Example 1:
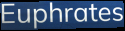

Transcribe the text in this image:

Euphrates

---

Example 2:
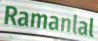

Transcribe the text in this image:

Ramanlal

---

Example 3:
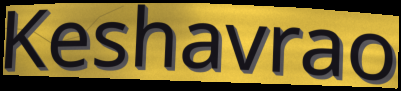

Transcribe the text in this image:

Keshavrao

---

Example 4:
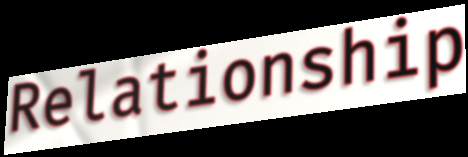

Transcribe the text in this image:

Relationship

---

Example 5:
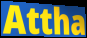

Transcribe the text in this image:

Attha